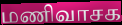
மணிவாசக